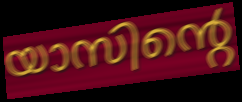
യാസിന്റെ